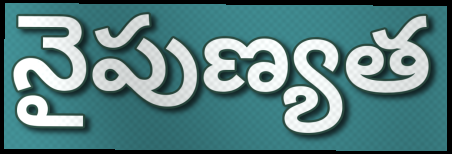
నైపుణ్యత